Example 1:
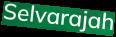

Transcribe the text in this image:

Selvarajah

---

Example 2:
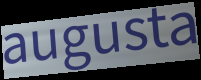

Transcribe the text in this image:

augusta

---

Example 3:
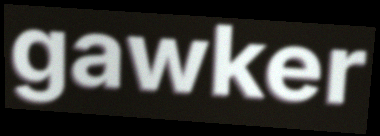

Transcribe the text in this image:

gawker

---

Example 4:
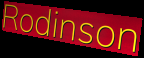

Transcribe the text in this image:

Rodinson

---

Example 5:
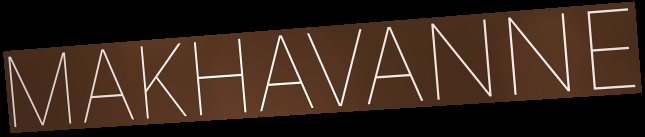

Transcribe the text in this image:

MAKHAVANNE